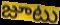
జూటు